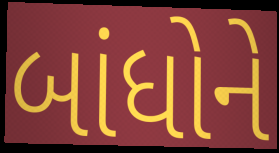
બાંધોને